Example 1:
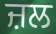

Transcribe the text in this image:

ਜ਼ਲ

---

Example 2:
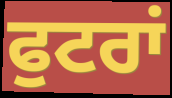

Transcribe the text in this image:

ਫੁਟਰਾਂ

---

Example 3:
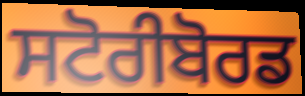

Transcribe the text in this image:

ਸਟੋਰੀਬੋਰਡ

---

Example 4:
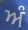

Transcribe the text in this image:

ਅੰ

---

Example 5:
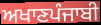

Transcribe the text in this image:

ਅਖਾਣਪੰਜਾਬੀ